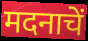
मदनाचें